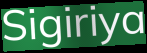
Sigiriya